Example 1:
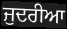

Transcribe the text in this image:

ਜੁਦਰੀਆ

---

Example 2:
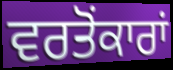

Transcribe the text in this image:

ਵਰਤੋਂਕਾਰਾਂ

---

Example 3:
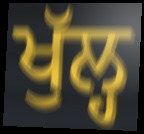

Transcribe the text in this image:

ਖੁੱਲ੍ਹ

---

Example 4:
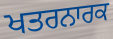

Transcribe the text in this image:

ਖਤਰਨਾਰਕ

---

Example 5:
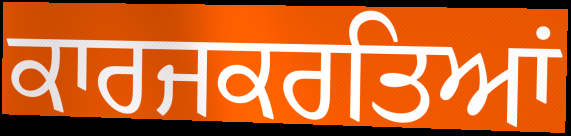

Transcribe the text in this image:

ਕਾਰਜਕਰਤਿਆਂ